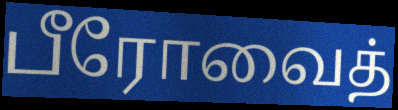
பீரோவைத்